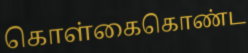
கொள்கைகொண்ட